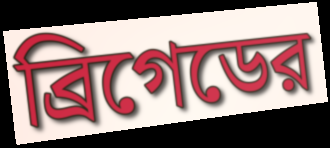
ব্রিগেডের